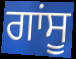
ਗਾਂਸੂ